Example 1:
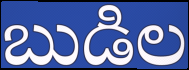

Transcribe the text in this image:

బుడిల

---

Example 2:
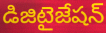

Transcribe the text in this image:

డిజిటైజేషన్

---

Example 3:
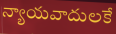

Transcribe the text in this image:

న్యాయవాదులకే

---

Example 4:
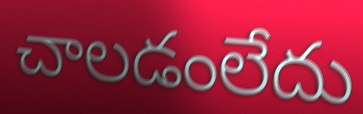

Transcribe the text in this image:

చాలడంలేదు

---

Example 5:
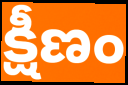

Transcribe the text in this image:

క్షీణం